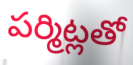
పర్మిట్లతో